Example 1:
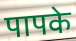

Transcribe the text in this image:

पापके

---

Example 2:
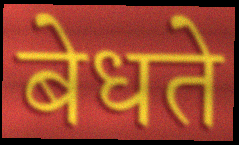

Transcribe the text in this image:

बेधते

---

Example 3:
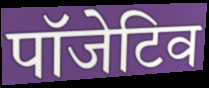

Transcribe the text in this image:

पॉजेटिव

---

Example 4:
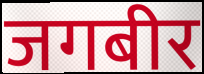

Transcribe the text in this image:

जगबीर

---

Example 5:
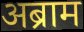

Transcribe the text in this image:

अब्राम